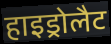
हाइड्रोलैट